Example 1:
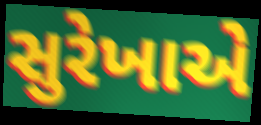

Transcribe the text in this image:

સુરેખાએ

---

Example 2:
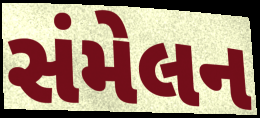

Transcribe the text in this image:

સંમેલન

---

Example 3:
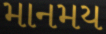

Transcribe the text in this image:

માનમય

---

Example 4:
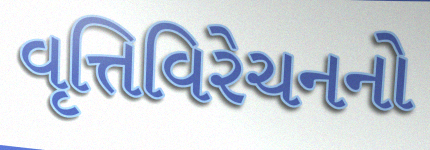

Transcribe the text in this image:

વૃત્તિવિરેચનનો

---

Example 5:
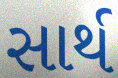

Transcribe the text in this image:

સાર્થ